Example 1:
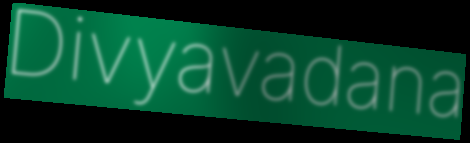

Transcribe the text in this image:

Divyavadana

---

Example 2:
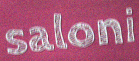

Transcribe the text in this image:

saloni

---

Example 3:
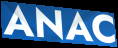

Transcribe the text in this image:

ANAC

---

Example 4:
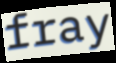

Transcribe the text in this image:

fray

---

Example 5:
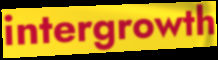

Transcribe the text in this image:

intergrowth